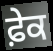
ਫ਼ੇਕ